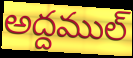
అద్దముల్